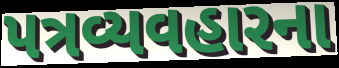
પત્રવ્યવહારના